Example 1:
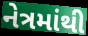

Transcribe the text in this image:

નેત્રમાંથી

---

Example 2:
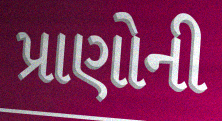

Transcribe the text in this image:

પ્રાણોની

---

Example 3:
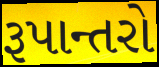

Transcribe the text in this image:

રૂપાન્તરો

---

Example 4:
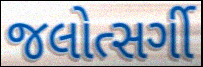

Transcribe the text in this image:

જલોત્સર્ગી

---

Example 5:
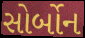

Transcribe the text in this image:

સોર્બોન